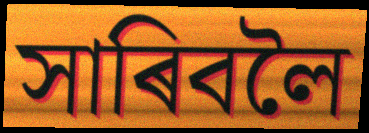
সাৰিবলৈ